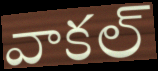
వాకల్